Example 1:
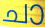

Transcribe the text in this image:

ചാ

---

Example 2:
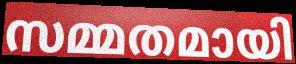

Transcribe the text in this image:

സമ്മതമായി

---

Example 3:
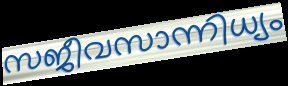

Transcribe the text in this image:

സജീവസാന്നിധ്യം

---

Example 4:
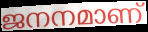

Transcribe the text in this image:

ജനനമാണ്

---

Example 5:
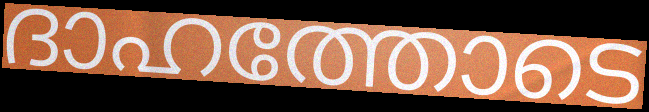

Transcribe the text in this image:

ദാഹത്തോടെ